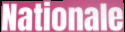
Nationale